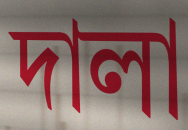
দালা